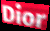
Dior